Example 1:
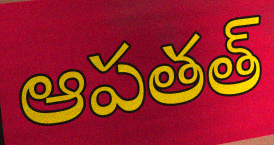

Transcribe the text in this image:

ఆపతత్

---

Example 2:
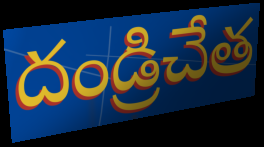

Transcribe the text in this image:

దండ్రిచేత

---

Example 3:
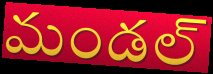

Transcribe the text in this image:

మండల్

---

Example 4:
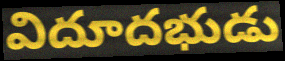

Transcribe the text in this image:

విదూదభుడు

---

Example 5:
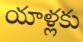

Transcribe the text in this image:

యాళ్లకు